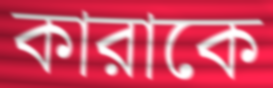
কারাকে